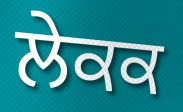
ਲੇਕਕ